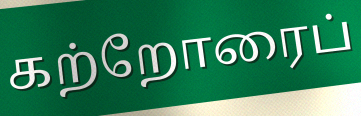
கற்றோரைப்